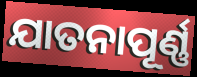
ଯାତନାପୂର୍ଣ୍ଣ